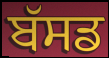
ਬੱਸਡ